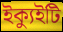
ইক্যুইটি